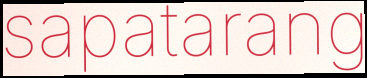
sapatarang